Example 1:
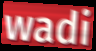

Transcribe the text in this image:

wadi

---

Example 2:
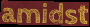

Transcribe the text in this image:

amidst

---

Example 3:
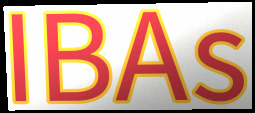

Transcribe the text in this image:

IBAs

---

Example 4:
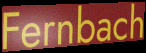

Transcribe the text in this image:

Fernbach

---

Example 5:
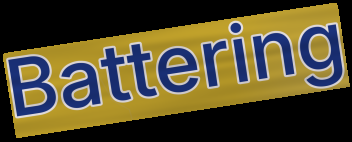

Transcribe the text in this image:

Battering